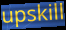
upskill